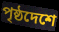
পৃষ্ঠদেশে